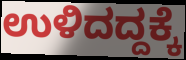
ಉಳಿದದ್ದಕ್ಕೆ